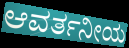
ಆವರ್ತನೀಯ